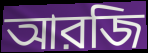
আরজি